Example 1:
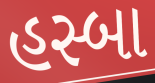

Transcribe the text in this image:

હસ્બા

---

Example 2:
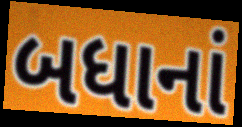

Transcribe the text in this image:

બધાનાં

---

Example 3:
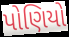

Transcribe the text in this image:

પોણિયો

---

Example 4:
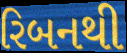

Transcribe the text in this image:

રિબનથી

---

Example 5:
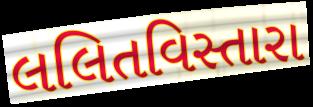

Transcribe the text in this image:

લલિતવિસ્તારા